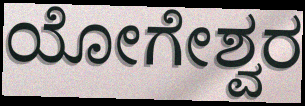
ಯೋಗೇಶ್ವರ